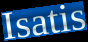
Isatis